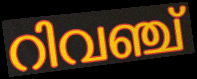
റിവഞ്ച്